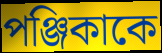
পঞ্জিকাকে